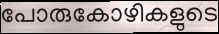
പോരുകോഴികളുടെ